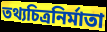
তথ্যচিত্রনির্মাতা